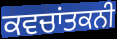
ਕਵਚਾਂਤਕਨੀ